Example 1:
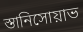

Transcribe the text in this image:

স্তানিসোয়াভ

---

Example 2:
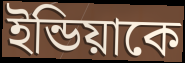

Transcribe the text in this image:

ইন্ডিয়াকে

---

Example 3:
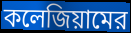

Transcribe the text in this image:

কলেজিয়ামের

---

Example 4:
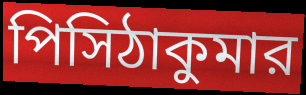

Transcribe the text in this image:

পিসিঠাকুমার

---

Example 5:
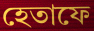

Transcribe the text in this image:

হেতাফে